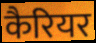
कैरियर